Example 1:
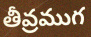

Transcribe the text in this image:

తీవ్రముగ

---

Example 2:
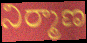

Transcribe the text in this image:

నిర్మాణ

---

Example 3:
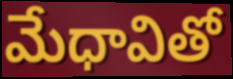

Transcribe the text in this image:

మేధావితో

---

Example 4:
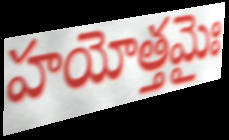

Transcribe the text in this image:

హయోత్తమైః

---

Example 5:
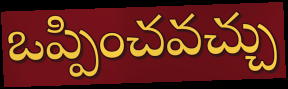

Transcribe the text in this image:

ఒప్పించవచ్చు